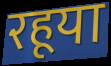
रहूया